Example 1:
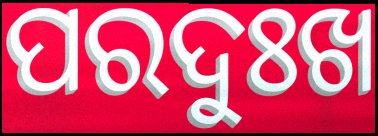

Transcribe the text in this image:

ପରଦୁଃଖ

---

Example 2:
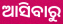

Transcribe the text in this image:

ଆସିବାରୁ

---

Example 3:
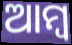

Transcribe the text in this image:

ଆମ୍ୱ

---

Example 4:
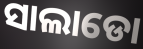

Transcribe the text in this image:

ସାଲାଡୋ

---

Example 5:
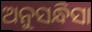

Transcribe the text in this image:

ଅନୁସନ୍ଧିସା